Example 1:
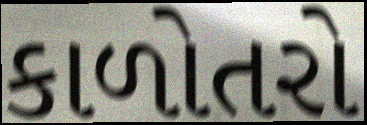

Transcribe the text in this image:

કાળોતરો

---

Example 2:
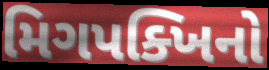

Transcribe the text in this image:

મિગપક્ખિનો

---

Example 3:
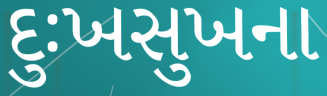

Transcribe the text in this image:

દુઃખસુખના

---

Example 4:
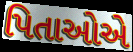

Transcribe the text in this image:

પિતાઓએ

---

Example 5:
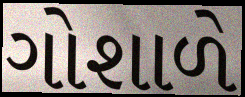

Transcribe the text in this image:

ગોશાળે